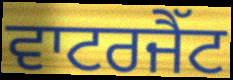
ਵਾਟਰਜੈੱਟ